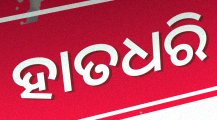
ହାତଧରି